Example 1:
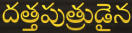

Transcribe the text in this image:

దత్తపుత్రుడైన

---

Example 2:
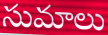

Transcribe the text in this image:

సుమాలు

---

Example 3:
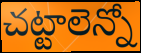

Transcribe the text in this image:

చట్టాలెన్నో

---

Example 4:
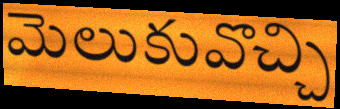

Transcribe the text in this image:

మెలుకువొచ్చి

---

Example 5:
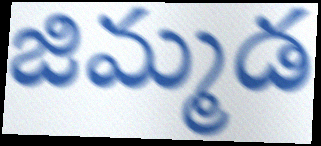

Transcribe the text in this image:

జిమ్మడ